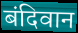
बंदिवान